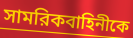
সামরিকবাহিনীকে